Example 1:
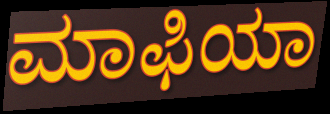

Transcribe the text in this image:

ಮಾಫಿಯಾ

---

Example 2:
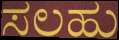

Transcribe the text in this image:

ಸಲಹು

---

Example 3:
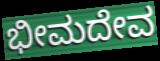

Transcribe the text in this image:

ಭೀಮದೇವ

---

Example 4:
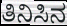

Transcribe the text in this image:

ತಿನಿಸಿನ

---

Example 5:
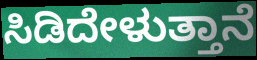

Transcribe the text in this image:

ಸಿಡಿದೇಳುತ್ತಾನೆ